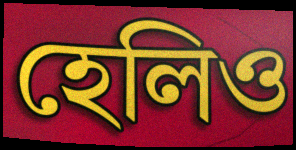
হেলিও